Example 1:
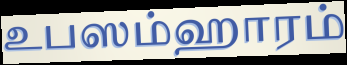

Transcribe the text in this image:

உபஸம்ஹாரம்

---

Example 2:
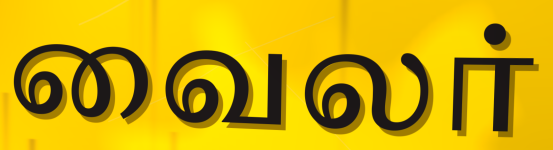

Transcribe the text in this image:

வைலர்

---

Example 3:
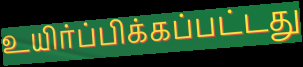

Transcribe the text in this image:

உயிர்ப்பிக்கப்பட்டது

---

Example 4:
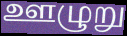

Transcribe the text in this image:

ஊழுறு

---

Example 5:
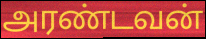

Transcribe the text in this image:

அரண்டவன்